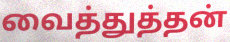
வைத்துத்தன்